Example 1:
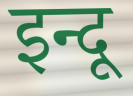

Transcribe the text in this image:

इन्दू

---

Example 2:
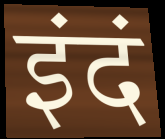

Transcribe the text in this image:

इंदं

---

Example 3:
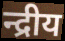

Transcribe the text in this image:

न्द्रीय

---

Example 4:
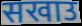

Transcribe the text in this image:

सखाउ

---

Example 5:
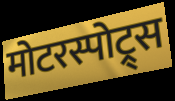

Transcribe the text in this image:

मोटरस्पोट्र्स